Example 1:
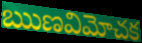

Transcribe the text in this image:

ఋణవిమోచక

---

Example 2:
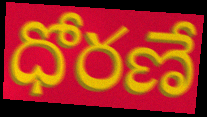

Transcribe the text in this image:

ధోరణే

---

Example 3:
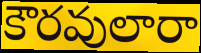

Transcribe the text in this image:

కౌరవులారా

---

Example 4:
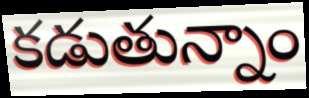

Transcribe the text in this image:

కడుతున్నాం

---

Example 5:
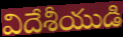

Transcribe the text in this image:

విదేశీయుడి